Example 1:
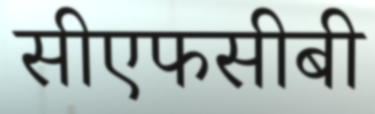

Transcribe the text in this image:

सीएफसीबी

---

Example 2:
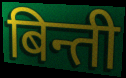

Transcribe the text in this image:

बिन्ती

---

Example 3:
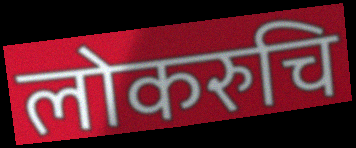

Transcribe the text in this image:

लोकरुचि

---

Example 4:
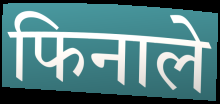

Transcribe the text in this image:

फिनाले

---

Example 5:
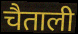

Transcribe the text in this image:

चैताली